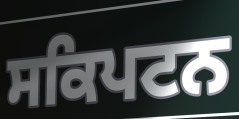
ਸਕਿਪਟਨ